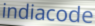
indiacode